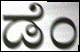
ಡೆಂ